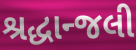
શ્રદ્ધાન્જલી